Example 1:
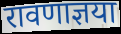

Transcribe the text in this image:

रावणाज्ञया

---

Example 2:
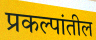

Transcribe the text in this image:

प्रकल्पांतील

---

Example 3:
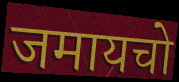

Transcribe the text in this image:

जमायचो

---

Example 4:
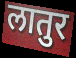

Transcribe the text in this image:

लातुर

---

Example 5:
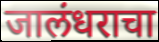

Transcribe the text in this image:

जालंधराचा